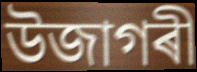
উজাগৰী